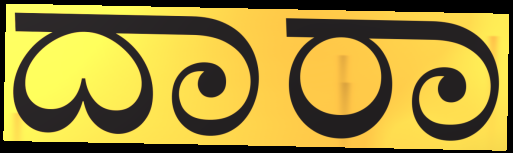
ದಾರಾ